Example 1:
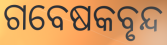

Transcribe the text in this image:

ଗବେଷକବୃନ୍ଦ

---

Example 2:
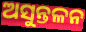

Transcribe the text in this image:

ଅସୁନ୍ତଳନ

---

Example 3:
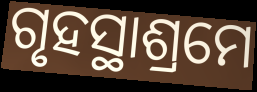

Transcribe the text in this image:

ଗୃହସ୍ଥାଶ୍ରମେ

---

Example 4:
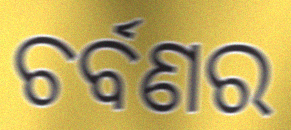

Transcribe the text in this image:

ଚର୍ବଣର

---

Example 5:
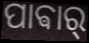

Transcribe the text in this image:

ପାଵାର୍